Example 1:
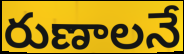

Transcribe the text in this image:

రుణాలనే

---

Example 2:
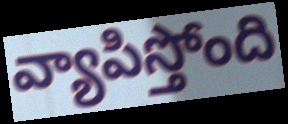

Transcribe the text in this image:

వ్యాపిస్తోంది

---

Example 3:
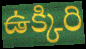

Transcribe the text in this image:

ఉక్కిరి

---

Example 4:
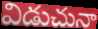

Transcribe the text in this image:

విడుచునా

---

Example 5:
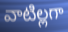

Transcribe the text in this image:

వాటిల్లగా